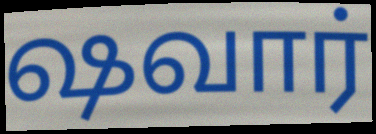
ஷவார்